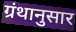
ग्रंथानुसार